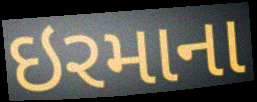
ઇરમાના